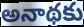
అనాథకు